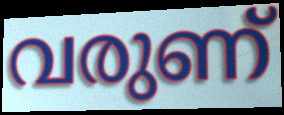
വരുണ്